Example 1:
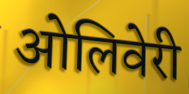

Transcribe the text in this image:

ओलिवेरी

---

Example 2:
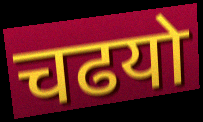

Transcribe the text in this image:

चढयो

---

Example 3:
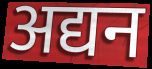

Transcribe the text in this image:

अद्यन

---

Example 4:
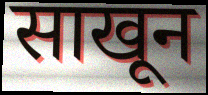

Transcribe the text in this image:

साखून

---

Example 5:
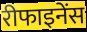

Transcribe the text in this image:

रीफाइनेंस